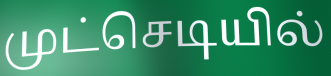
முட்செடியில்